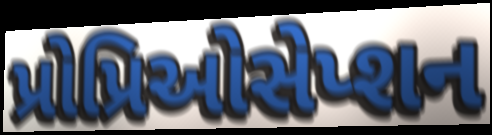
પ્રોપ્રિઓસેપ્શન